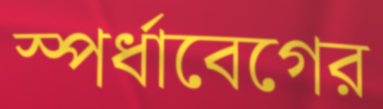
স্পর্ধাবেগের